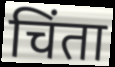
चिंता